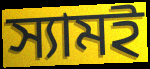
স্যামই